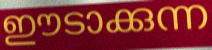
ഈടാക്കുന്ന